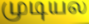
முடியல